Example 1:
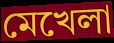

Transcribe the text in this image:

মেখেলা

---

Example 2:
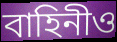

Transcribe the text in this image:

বাহিনীও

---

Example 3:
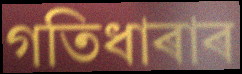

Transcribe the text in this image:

গতিধাৰাৰ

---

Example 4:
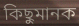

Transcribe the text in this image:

কিছুমানক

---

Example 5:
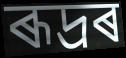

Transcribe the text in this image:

ৰূদ্ৰৰ